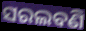
ସରଲବଣି